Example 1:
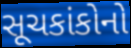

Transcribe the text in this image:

સૂચકાંકોનો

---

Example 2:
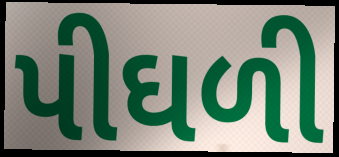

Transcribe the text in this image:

પીઘળી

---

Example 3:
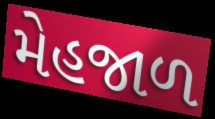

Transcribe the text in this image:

મેહજાળ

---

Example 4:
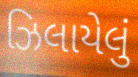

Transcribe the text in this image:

ઝિલાયેલું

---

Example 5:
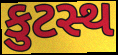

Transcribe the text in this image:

કુટસ્થ